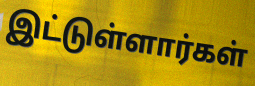
இட்டுள்ளார்கள்